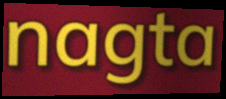
nagta